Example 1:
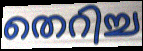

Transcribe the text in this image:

തെറിച്ച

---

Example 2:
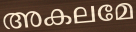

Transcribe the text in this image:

അകലമേ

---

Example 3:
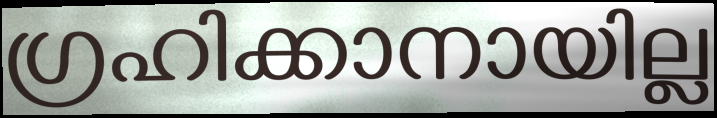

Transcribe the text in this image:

ഗ്രഹിക്കാനായില്ല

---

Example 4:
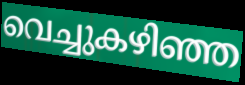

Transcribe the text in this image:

വെച്ചുകഴിഞ്ഞ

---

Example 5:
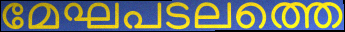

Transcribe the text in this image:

മേഘപടലത്തെ